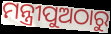
ମନ୍ତ୍ରୀପୁଅଠାରୁ